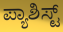
ಪ್ಯಾಶಿಸ್ಟ್